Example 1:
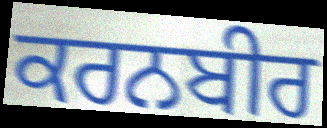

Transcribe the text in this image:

ਕਰਨਬੀਰ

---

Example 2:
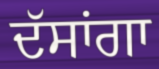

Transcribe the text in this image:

ਦੱਸਾਂਗਾ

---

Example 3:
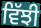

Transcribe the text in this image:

ਵਿੱਝੀ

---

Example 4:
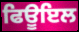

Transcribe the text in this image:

ਫਿਊਇਲ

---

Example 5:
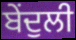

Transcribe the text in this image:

ਬੇਂਦੁਲੀ